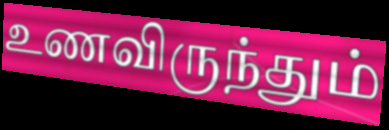
உணவிருந்தும்